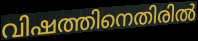
വിഷത്തിനെതിരിൽ